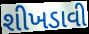
શીખડાવી